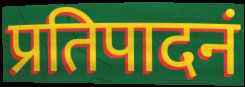
प्रतिपादनं